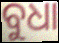
ବୁଧା